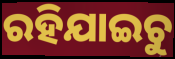
ରହିଯାଇଚୁ